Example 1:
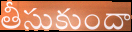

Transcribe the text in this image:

తీసుకుందా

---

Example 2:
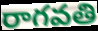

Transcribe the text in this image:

రాగవతి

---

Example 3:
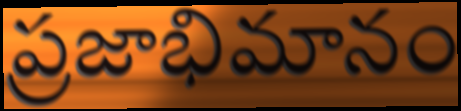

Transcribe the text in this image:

ప్రజాభిమానం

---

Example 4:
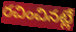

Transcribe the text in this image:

రచించినట్లే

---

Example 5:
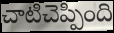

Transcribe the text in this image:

చాటిచెప్పింది